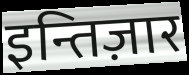
इन्तिज़ार